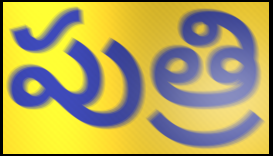
పుత్రి